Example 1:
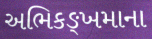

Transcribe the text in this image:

અભિકઙ્ખમાના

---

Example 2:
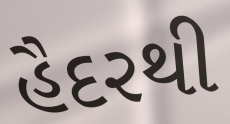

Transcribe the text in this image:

હૈદરથી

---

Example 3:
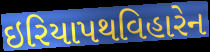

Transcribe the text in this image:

ઇરિયાપથવિહારેન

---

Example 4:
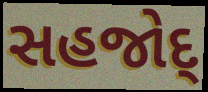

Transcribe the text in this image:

સહજોદ્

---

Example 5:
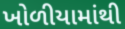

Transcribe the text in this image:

ખોળીયામાંથી